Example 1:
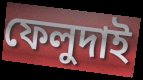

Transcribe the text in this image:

ফেলুদাই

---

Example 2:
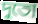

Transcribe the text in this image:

দুতো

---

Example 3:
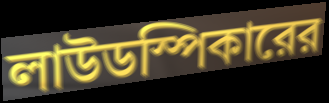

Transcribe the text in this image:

লাউডস্পিকারের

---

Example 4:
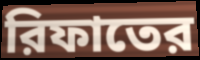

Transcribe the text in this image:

রিফাতের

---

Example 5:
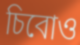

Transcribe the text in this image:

চিবোও